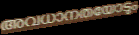
അവധാനതയോടും